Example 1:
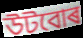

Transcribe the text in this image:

উটবোৰ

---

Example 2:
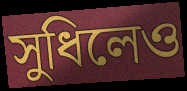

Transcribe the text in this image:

সুধিলেও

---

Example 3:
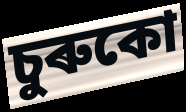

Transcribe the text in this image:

চুৰুকো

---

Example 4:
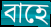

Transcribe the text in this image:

বাহে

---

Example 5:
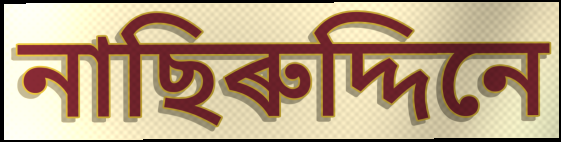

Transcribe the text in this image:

নাছিৰুদ্দিনে